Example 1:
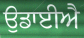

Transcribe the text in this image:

ਉਡਾਈਐ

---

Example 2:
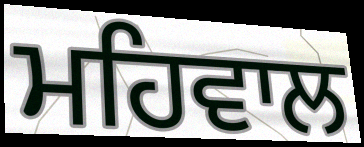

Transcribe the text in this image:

ਮਹਿਵਾਲ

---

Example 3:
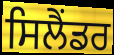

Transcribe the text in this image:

ਸਿਲੈਂਡਰ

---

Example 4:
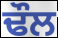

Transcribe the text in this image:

ਢੌਲ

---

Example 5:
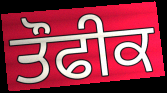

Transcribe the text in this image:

ਤੌਫੀਕ